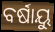
ବର୍ଷାୟୁ